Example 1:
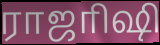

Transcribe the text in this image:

ராஜரிஷி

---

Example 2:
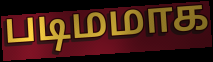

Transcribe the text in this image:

படிமமாக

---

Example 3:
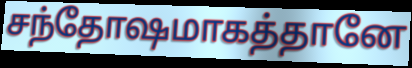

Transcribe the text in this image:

சந்தோஷமாகத்தானே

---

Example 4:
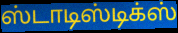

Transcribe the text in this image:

ஸ்டாடிஸ்டிக்ஸ்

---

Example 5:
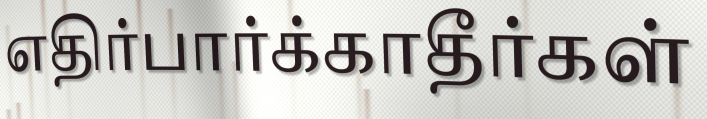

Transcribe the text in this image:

எதிர்பார்க்காதீர்கள்